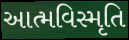
આત્મવિસ્મૃતિ